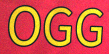
OGG